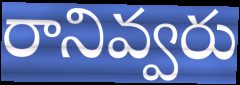
రానివ్వరు